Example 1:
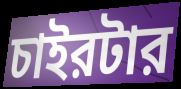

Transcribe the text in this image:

চাইরটার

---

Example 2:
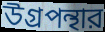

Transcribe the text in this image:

উগ্রপন্থার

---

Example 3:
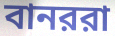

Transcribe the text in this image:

বানররা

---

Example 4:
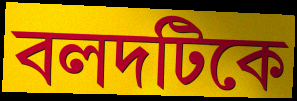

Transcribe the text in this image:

বলদটিকে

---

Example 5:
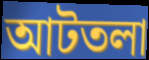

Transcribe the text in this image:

আটতলা